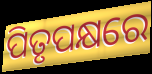
ପିତୃପକ୍ଷରେ